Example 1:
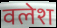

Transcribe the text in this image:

वलेश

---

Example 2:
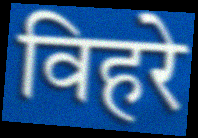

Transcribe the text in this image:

विहरे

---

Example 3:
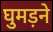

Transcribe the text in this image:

घुमड़ने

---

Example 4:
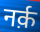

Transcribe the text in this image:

नर्क़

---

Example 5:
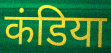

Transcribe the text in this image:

कंडिया